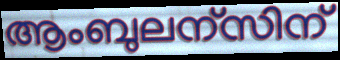
ആംബുലന്സിന്